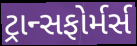
ટ્રાન્સફોર્મર્સ